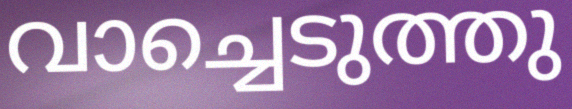
വാച്ചെടുത്തു